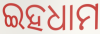
ଇହଧାମ